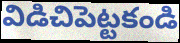
విడిచిపెట్టకండి